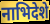
नाभिदेशे